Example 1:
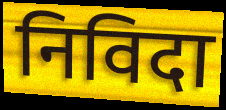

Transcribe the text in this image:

निविदा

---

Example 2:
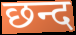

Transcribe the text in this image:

छन्‍द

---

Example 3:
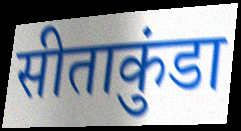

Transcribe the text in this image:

सीताकुंडा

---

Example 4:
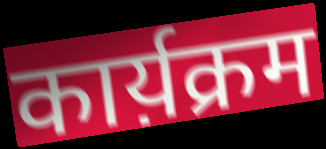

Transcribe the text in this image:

कार्य़क्रम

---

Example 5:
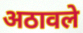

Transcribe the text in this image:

अठावले